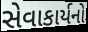
સેવાકાર્યનો